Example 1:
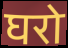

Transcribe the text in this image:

घरो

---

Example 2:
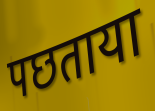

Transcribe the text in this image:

पछताया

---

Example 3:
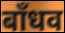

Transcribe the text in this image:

बाँधव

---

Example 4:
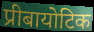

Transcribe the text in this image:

प्रीबायोटिक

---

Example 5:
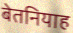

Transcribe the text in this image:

बेतनियाह